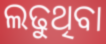
ଲଢୁଥିବା